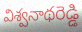
విశ్వనాథరెడ్డి